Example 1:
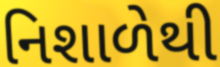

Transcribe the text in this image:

નિશાળેથી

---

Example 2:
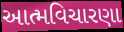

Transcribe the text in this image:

આત્મવિચારણા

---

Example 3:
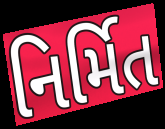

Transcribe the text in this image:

નિર્મિત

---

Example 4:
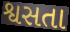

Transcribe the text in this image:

શ્વસતા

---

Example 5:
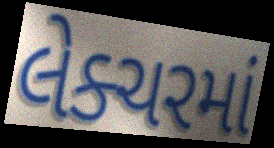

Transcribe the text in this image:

લેક્ચરમાં